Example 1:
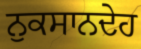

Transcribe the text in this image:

ਨੁਕਸਾਨਦੇਹ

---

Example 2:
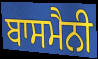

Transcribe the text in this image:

ਬਾਸਮੈਨੀ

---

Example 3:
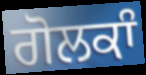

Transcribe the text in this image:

ਗੋਲਕਾੰ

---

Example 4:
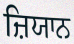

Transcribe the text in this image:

ਜ਼ਿਯਾਨ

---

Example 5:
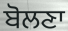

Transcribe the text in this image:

ਬੋਲਣਾ